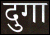
दुगा